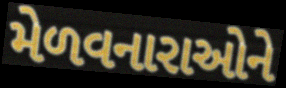
મેળવનારાઓને